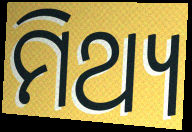
ମିଥ୍ୟ